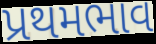
પ્રથમભાવ